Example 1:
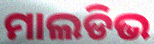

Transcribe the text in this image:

ମାଲଡିଭ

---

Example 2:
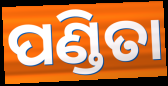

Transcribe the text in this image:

ପଣ୍ଡିତା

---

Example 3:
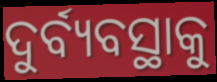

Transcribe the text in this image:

ଦୁର୍ବ୍ୟବସ୍ଥାକୁ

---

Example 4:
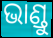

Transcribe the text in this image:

ଭାଣ୍ଡୁ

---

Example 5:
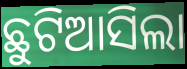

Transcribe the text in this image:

ଛୁଟିଆସିଲା